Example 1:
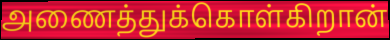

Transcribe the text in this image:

அணைத்துக்கொள்கிறான்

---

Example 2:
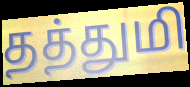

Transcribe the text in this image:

தத்துமி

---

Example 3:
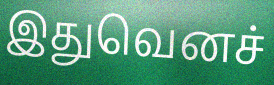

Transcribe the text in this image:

இதுவெனச்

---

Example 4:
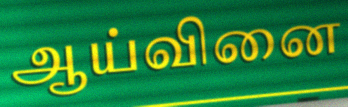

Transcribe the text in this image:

ஆய்வினை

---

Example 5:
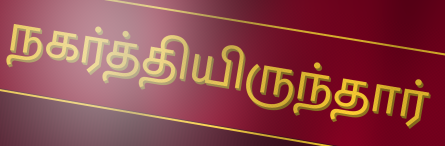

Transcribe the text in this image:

நகர்த்தியிருந்தார்